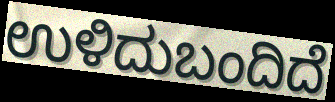
ಉಳಿದುಬಂದಿದೆ